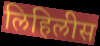
लिहिलीस